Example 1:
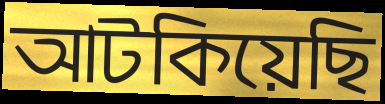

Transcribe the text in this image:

আটকিয়েছি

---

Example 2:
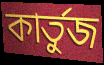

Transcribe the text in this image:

কার্তুজ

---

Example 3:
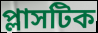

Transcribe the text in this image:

প্লাসটিক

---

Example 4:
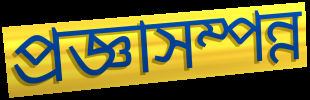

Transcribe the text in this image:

প্রজ্ঞাসম্পন্ন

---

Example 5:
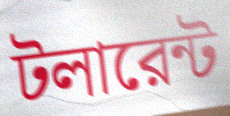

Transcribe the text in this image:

টলারেন্ট